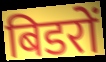
बिडरों